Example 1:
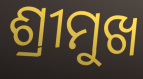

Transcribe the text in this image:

ଶ୍ରୀମୁଖ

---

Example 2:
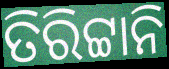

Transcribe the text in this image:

ତିରିଟ୍ଟାନି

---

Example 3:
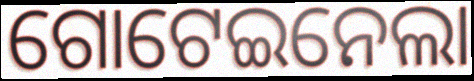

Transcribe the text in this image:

ଗୋଟେଇନେଲା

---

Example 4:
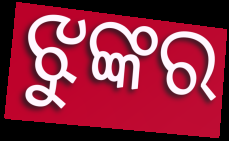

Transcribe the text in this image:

ଝୁଙ୍କର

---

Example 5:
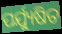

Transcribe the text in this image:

ପର୍ଯ୍ୟୁଷିତ